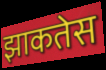
झाकतेस